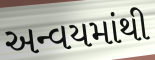
અન્વયમાંથી